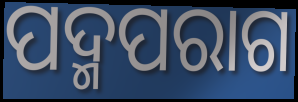
ପଦ୍ମପରାଗ